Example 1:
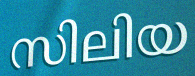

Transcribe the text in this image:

സിലിയ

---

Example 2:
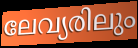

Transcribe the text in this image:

ലേവ്യരിലും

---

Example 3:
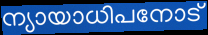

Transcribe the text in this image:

ന്യായാധിപനോട്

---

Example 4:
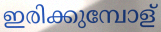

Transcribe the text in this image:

ഇരിക്കുമ്പോള്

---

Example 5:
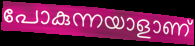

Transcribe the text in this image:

പോകുന്നയാളാണ്